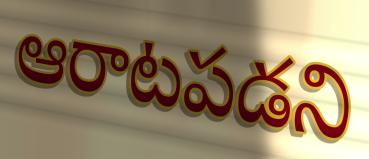
ఆరాటపడని